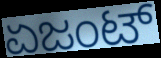
ಏಜಂಟ್